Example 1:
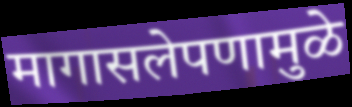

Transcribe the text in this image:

मागासलेपणामुळे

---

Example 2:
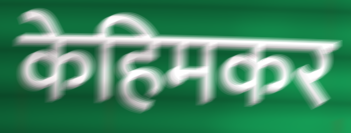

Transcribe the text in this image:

केहिमकर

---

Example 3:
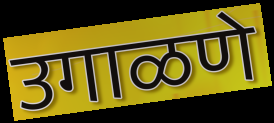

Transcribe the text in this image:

उगाळणे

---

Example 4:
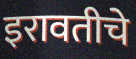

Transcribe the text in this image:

इरावतीचे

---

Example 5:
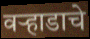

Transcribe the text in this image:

वऱ्हाडाचे